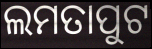
ଲମତାପୁଟ